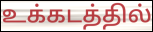
உக்கடத்தில்